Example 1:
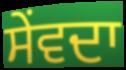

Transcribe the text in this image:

ਸੇਂਵਦਾ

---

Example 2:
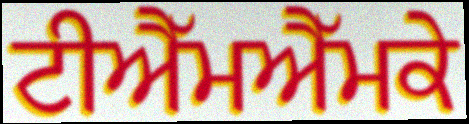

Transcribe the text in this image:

ਟੀਐੱਮਐੱਮਕੇ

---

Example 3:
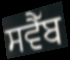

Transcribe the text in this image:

ਸਵੈੱਬ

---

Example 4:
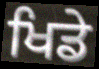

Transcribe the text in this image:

ਖਿਡੇ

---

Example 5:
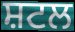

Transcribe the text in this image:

ਸ਼ਟਲ